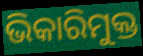
ଭିକାରିମୁକ୍ତ